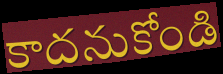
కాదనుకోండి